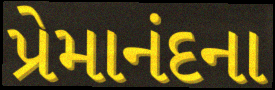
પ્રેમાનંદના